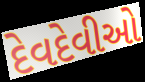
દેવદેવીઓ